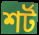
শর্ট